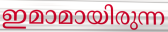
ഇമാമായിരുന്ന